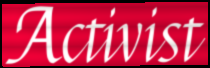
Activist